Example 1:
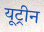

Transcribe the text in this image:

यूट्रीन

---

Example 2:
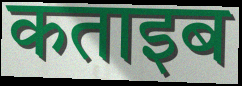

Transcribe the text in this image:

कताइब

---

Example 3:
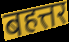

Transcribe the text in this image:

बहत्तर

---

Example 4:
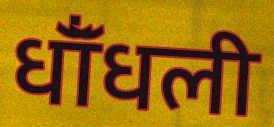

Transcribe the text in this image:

धॉँधली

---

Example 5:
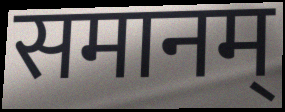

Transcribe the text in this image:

समानम्